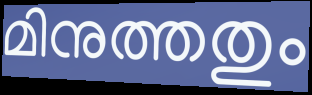
മിനുത്തതും